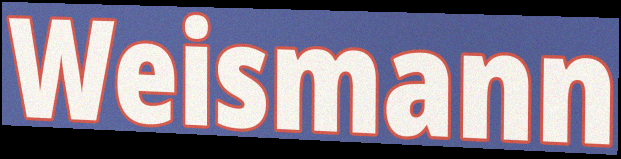
Weismann